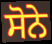
ਸੋਨੇ